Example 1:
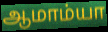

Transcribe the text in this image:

ஆமாம்யா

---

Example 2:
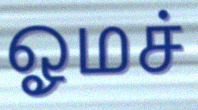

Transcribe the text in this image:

ஓமச்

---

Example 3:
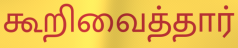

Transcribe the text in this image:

கூறிவைத்தார்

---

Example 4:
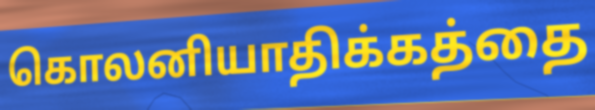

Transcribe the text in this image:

கொலனியாதிக்கத்தை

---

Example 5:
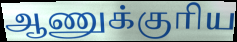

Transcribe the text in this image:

ஆணுக்குரிய